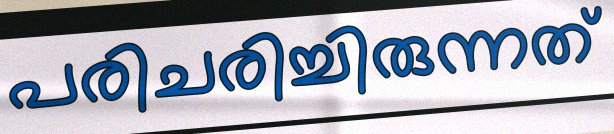
പരിചരിച്ചിരുന്നത്